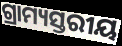
ଗ୍ରାମ୍ୟସ୍ତରୀୟ